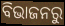
ବିଭାଜନରୁ